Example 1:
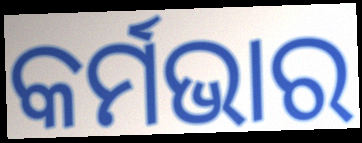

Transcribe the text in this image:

କର୍ମଭାର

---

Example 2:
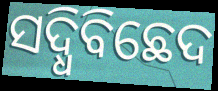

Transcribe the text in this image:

ସଦ୍ଧିବିଛେଦ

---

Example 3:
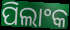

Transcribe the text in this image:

ପିଲାଂକ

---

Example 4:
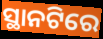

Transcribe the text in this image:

ସ୍ଥାନଟିରେ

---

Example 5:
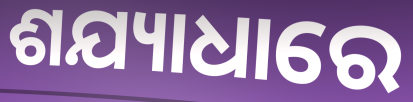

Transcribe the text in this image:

ଶଯ୍ୟାଧାରେ